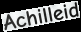
Achilleid